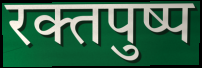
रक्तपुष्प